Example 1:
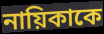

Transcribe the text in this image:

নায়িকাকে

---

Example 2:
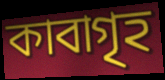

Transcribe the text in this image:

কাবাগৃহ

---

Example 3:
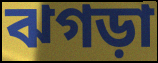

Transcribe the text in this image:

ঝগড়া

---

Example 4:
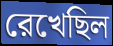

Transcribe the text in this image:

রেখেছিল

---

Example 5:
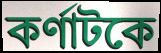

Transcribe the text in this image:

কর্ণাটকে